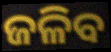
ଜଳିବ